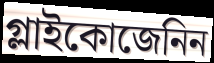
গ্লাইকোজেনিন